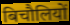
बिचौलियों